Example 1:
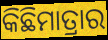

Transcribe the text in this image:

କିଛିମାତ୍ରାର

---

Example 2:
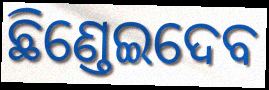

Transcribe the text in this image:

ଛିଣ୍ଡେଇଦେବ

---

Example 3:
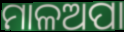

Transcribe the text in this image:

ମାଳଅପା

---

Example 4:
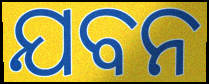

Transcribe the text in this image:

ଯବନ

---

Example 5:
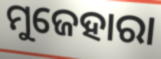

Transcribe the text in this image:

ମୁଜେହାରା